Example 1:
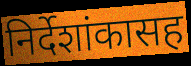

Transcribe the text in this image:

निर्देशांकासह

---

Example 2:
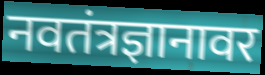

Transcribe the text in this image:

नवतंत्रज्ञानावर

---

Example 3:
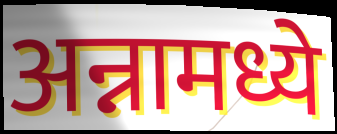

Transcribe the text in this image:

अन्नामध्ये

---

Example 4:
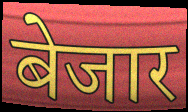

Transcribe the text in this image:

बेजार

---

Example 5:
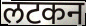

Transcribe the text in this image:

लटकन